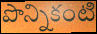
పొన్నికంటి